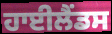
ਹਾਈਲੈਂਡਸ